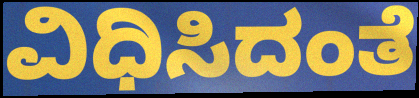
ವಿಧಿಸಿದಂತೆ